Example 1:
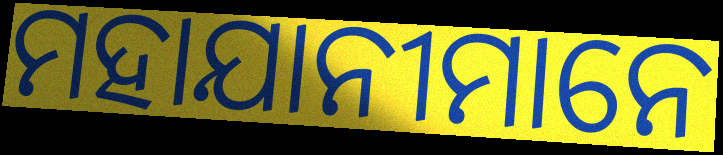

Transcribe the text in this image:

ମହାଯାନୀମାନେ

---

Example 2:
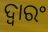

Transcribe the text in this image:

ଦ୍ୱାରଂ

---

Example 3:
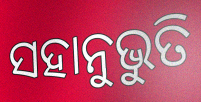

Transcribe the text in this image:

ସହାନୁଭୁତି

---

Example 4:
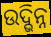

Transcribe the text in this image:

ଉଦ୍ଭିନ୍ନ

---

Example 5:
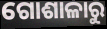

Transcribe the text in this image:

ଗୋଶାଳାରୁ